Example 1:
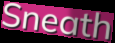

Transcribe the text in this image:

Sneath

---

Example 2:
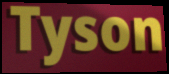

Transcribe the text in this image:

Tyson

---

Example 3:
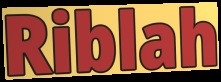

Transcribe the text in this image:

Riblah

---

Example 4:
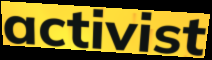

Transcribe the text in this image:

activist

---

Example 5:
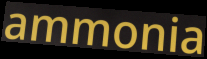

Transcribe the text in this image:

ammonia